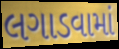
લગાડવામાં